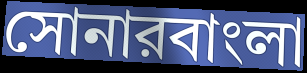
সোনারবাংলা